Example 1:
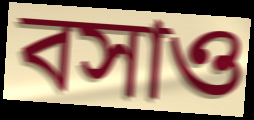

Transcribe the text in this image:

বসাও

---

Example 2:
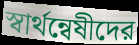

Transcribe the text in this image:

স্বার্থন্বেষীদের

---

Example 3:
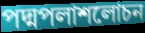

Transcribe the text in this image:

পদ্মপলাশলোচন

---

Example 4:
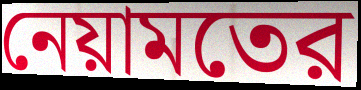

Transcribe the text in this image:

নেয়ামতের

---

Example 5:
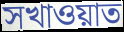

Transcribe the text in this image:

সখাওয়াত